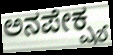
ಅನಪೇಕ್ಷ್ಯ